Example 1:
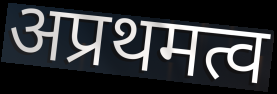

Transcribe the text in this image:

अप्रथमत्व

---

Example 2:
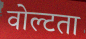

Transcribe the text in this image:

वोल्टता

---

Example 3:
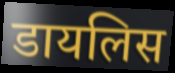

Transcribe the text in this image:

डायलिस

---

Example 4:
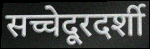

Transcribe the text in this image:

सच्चेदूरदर्शी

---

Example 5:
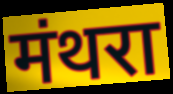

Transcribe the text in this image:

मंथरा